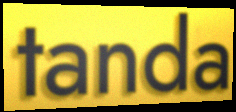
tanda